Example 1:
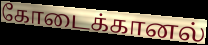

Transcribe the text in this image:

கோடைக்கானல்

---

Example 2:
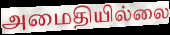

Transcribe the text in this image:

அமைதியில்லை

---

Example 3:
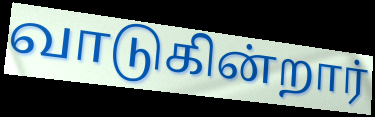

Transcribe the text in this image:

வாடுகின்றார்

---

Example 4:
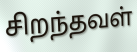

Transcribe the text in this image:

சிறந்தவள்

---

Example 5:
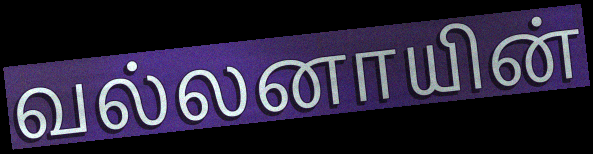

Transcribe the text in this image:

வல்லனாயின்